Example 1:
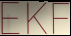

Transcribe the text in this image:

EKF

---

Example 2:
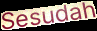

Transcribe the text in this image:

Sesudah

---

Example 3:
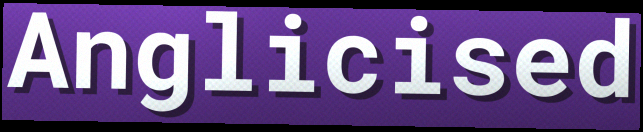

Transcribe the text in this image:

Anglicised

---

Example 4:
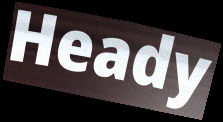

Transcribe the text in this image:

Heady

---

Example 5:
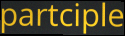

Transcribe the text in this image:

partciple